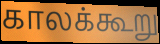
காலக்கூறு